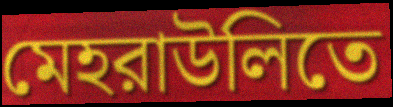
মেহরাউলিতে